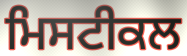
ਮਿਸਟੀਕਲ